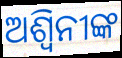
ଅଶ୍ୱିନୀଙ୍କ